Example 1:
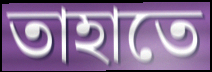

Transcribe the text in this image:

তাহাতে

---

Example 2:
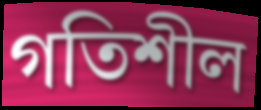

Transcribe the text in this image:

গতিশীল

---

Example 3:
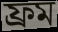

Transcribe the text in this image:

ফ্ৰম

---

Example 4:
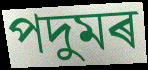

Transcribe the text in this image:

পদুমৰ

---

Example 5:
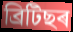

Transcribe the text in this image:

ব্ৰিটিছৰ